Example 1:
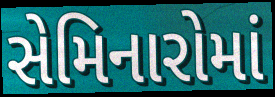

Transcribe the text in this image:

સેમિનારોમાં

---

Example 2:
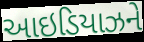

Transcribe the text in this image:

આઇડિયાઝને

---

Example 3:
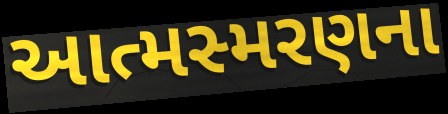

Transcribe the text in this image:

આત્મસ્મરણના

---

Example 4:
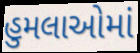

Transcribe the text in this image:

હુમલાઓમાં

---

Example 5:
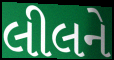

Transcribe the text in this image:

લીલને